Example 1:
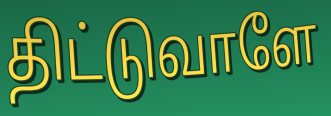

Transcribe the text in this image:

திட்டுவாளே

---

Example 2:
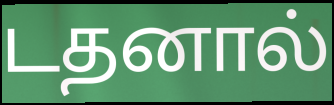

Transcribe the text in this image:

டதனால்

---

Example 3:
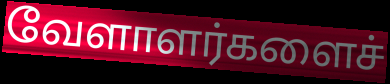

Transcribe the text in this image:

வேளாளர்களைச்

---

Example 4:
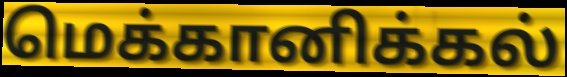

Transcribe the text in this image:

மெக்கானிக்கல்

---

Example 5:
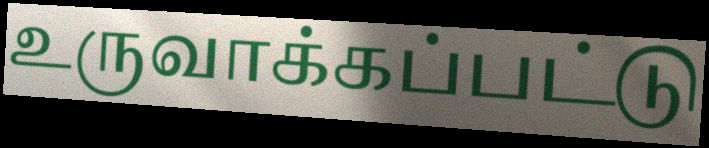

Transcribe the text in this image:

உருவாக்கப்பட்டு